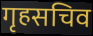
गृहसचिव